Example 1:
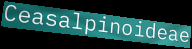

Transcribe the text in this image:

Ceasalpinoideae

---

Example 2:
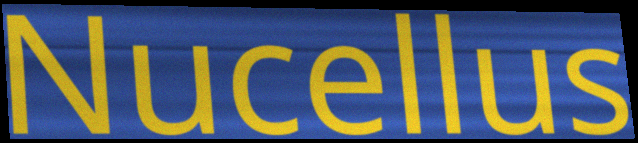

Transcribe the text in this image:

Nucellus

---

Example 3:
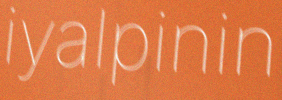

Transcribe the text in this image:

iyalpinin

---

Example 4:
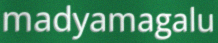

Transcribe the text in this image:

madyamagalu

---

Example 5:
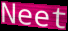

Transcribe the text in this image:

Neet